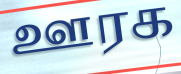
ஊரக